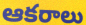
ఆకరాలు